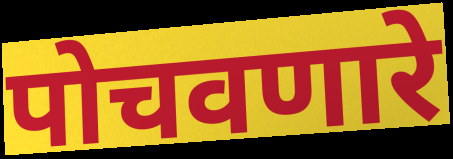
पोचवणारे